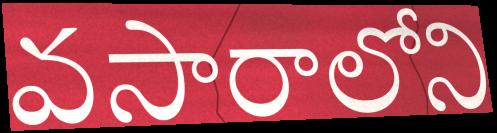
వసారాలోని